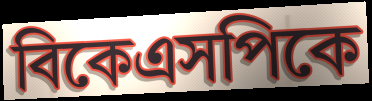
বিকেএসপিকে